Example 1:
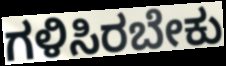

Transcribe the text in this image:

ಗಳಿಸಿರಬೇಕು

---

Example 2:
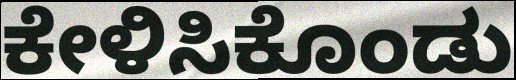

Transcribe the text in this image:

ಕೇಳಿಸಿಕೊಂಡು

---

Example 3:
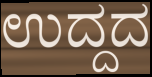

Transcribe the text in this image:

ಉದ್ದದ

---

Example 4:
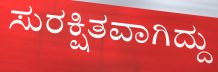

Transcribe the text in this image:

ಸುರಕ್ಷಿತವಾಗಿದ್ದು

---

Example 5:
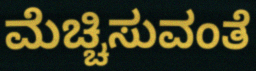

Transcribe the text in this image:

ಮೆಚ್ಚಿಸುವಂತೆ